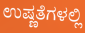
ಉಷ್ಣತೆಗಳಲ್ಲಿ